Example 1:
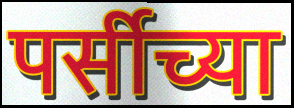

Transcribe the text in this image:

पर्सीच्या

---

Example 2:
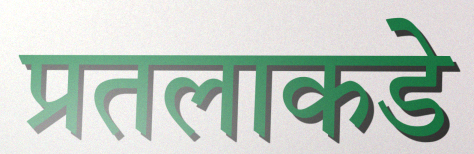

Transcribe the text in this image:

प्रतलाकडे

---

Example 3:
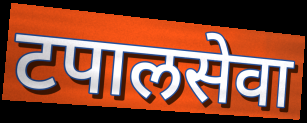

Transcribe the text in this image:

टपालसेवा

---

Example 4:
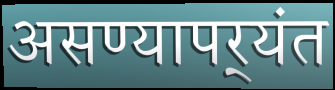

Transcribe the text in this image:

असण्यापर्यंत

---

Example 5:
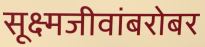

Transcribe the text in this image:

सूक्ष्मजीवांबरोबर